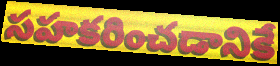
సహకరించడానికే